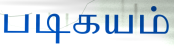
படிகயம்